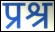
प्रश्र